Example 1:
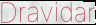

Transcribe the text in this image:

Dravidar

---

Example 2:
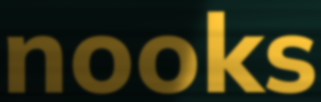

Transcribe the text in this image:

nooks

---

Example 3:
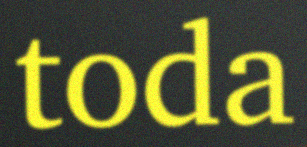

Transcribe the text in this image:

toda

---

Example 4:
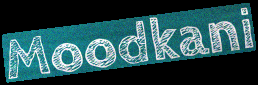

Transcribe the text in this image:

Moodkani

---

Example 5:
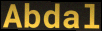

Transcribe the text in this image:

Abdal